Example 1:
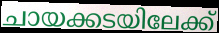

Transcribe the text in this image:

ചായക്കടയിലേക്ക്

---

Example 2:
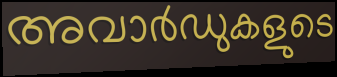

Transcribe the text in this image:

അവാർഡുകളുടെ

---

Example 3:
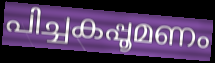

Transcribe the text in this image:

പിച്ചകപ്പൂമണം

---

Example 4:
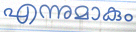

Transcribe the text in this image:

എന്നുമാകും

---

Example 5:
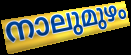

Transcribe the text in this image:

നാലുമുഴം